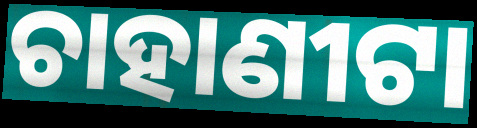
ଚାହାଣୀଟା